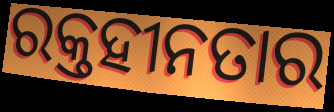
ରକ୍ତହୀନତାର